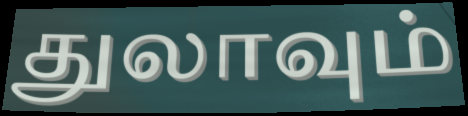
துலாவும்